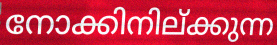
നോക്കിനില്ക്കുന്ന